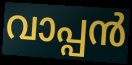
വാപ്പൻ